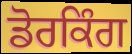
ਡੋਰਕਿੰਗ